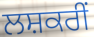
ਲਸ਼ਕਰੀਂ